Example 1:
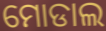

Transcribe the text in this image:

ମୋଡାଲ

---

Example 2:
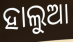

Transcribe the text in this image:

ହାଲୁଆ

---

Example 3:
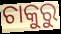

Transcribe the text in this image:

ଚାକୁରୁ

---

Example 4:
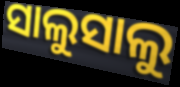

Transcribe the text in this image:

ସାଲୁସାଲୁ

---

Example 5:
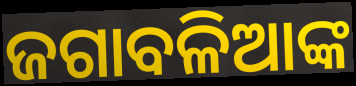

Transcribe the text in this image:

ଜଗାବଳିଆଙ୍କ